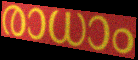
രാധാം